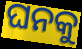
ଘନକୁ